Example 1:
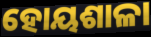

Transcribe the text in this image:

ହୋୟଶାଳା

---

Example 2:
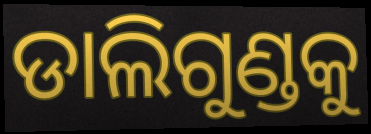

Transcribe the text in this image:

ଡାଲିଗୁଣ୍ଡକୁ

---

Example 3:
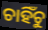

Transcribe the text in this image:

ଚାହିଁଚୁ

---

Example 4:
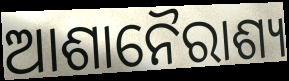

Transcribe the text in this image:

ଆଶାନୈରାଶ୍ୟ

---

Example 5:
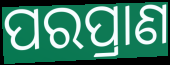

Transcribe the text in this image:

ପରପ୍ରାଣ